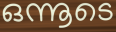
ഒന്നൂടെ